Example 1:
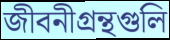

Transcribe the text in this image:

জীবনীগ্রন্থগুলি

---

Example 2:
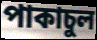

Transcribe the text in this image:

পাকাচুল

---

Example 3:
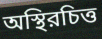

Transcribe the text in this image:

অস্থিরচিত্ত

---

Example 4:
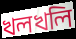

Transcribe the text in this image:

খলখলি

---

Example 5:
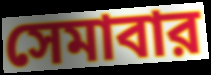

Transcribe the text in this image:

সেমাবার